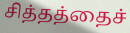
சித்தத்தைச்